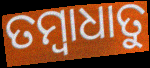
ତମ୍ବାଧାତୁ